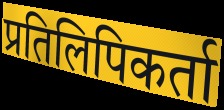
प्रतिलिपिकर्ता